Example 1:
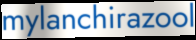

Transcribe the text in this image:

mylanchirazool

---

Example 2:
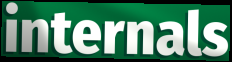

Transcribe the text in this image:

internals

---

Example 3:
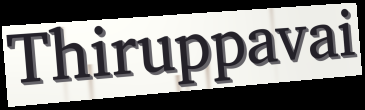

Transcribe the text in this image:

Thiruppavai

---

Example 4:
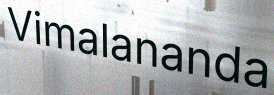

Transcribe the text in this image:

Vimalananda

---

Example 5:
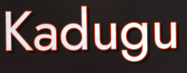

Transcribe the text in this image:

Kadugu